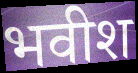
भवीश